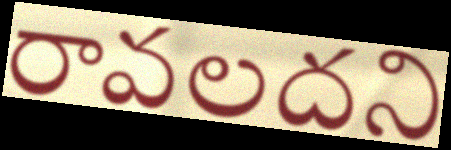
రావలదని